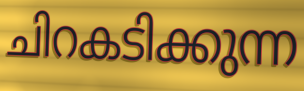
ചിറകടിക്കുന്ന